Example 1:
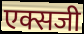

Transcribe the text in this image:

एक्सजी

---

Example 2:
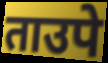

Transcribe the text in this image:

ताउपे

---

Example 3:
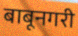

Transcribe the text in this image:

बाबूनगरी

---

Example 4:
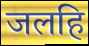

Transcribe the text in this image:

जलहि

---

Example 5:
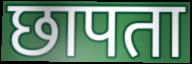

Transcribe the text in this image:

छापता